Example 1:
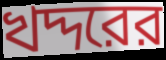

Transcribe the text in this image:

খদ্দরের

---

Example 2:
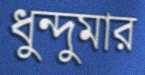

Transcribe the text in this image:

ধুন্দুমার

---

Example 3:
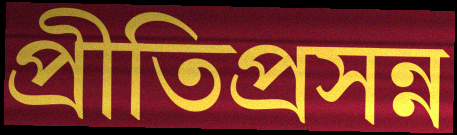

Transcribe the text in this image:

প্রীতিপ্রসন্ন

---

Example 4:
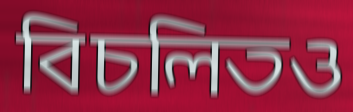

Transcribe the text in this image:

বিচলিতও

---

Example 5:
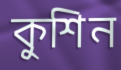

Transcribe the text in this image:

কুশিন